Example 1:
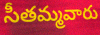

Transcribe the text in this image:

సీతమ్మవారు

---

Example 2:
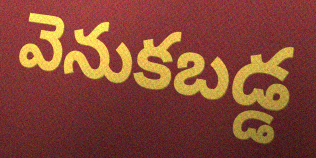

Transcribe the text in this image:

వెనుకబడ్డ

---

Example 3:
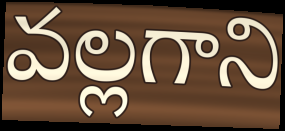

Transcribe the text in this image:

వల్లగాని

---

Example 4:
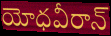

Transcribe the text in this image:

యోధవీరాన్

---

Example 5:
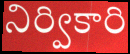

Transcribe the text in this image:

నిర్వికారి